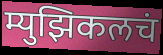
म्युझिकलचं